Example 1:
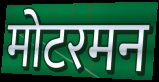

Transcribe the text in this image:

मोटरमन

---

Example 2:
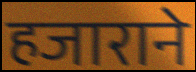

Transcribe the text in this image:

हजाराने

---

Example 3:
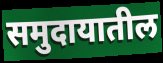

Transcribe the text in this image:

समुदायातील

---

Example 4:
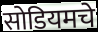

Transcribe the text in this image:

सोडियमचे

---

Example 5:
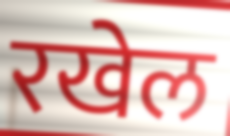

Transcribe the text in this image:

रखेल